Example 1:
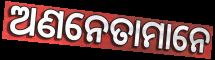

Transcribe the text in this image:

ଅଣନେତାମାନେ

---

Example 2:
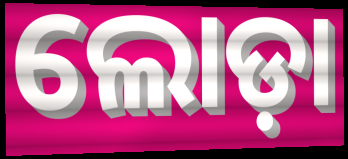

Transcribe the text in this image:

ଲୋଡ଼ା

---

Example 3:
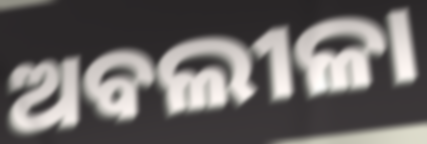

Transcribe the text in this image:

ଅବଲୀଳା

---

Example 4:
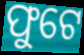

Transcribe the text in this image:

ଫୁଟେ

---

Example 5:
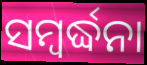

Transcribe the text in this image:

ସମ୍ୱର୍ଦ୍ଧନା